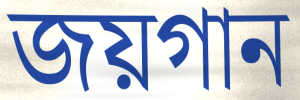
জয়গান